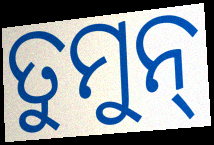
ତୁମୁନ୍